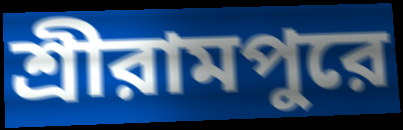
শ্রীরামপুরে